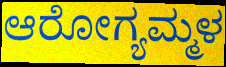
ಆರೋಗ್ಯಮ್ಮಳ